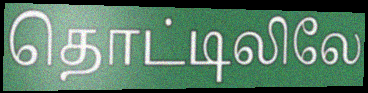
தொட்டிலிலே